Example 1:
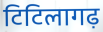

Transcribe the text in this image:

टिटिलागढ़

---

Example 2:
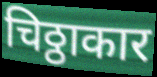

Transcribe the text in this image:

चिठ्ठाकार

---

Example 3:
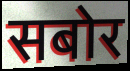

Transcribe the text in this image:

सबोर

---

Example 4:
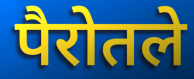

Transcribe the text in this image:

पैरोतले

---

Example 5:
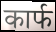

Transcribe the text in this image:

कार्फ